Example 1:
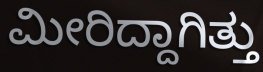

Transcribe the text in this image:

ಮೀರಿದ್ದಾಗಿತ್ತು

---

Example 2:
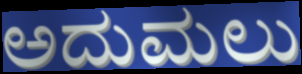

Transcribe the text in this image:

ಅದುಮಲು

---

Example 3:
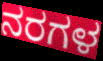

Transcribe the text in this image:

ನರಗಳ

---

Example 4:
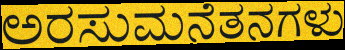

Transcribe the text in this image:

ಅರಸುಮನೆತನಗಳು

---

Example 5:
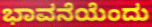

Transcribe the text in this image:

ಭಾವನೆಯೆಂದು